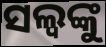
ସଲ୍ୱଙ୍କୁ